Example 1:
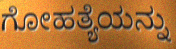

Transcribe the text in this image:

ಗೋಹತ್ಯೆಯನ್ನು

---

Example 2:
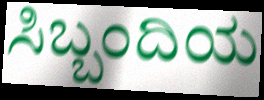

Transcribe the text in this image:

ಸಿಬ್ಬಂದಿಯ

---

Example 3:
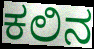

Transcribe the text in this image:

ಕಲಿನ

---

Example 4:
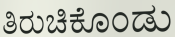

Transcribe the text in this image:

ತಿರುಚಿಕೊಂಡು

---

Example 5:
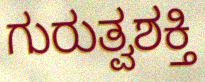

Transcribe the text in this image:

ಗುರುತ್ವಶಕ್ತಿ